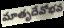
మాతృదేవోభవ